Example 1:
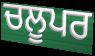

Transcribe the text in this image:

ਚਲੂਪਰ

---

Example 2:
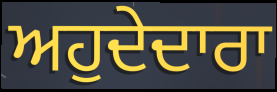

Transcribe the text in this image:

ਅਹੁਦੇਦਾਰਾ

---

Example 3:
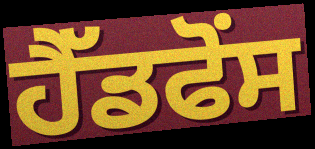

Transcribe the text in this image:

ਹੈੱਡਫੋਂਸ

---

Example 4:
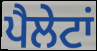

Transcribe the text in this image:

ਪੈਲੇਟਾਂ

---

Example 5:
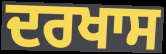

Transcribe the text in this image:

ਦਰਖਾਸ